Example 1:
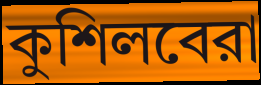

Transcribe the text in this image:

কুশিলবেরা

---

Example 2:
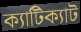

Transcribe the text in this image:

ক্যাটিক্যাট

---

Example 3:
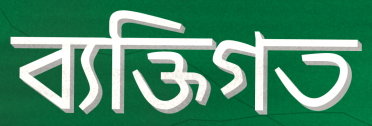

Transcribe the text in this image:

ব্যক্তিগত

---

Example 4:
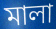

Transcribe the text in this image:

মালা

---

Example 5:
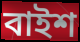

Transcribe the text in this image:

বাইশ